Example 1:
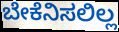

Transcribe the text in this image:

ಬೇಕೆನಿಸಲಿಲ್ಲ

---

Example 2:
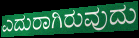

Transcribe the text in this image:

ಎದುರಾಗಿರುವುದು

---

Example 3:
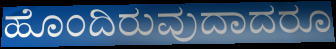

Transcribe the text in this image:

ಹೊಂದಿರುವುದಾದರೂ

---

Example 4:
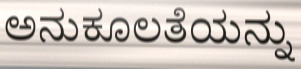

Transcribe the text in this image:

ಅನುಕೂಲತೆಯನ್ನು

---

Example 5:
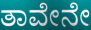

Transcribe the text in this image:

ತಾವೇನೇ